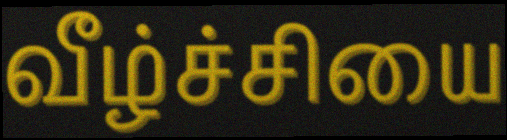
வீழ்ச்சியை